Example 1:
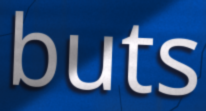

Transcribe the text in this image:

buts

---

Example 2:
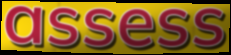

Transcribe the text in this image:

assess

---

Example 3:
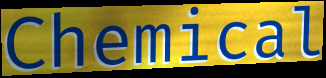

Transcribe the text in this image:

Chemical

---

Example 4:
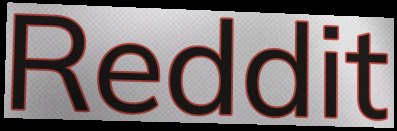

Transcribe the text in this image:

Reddit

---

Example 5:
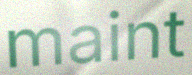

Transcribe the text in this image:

maint